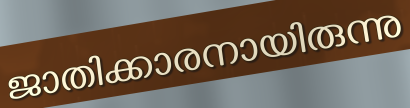
ജാതിക്കാരനായിരുന്നു